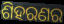
ଶିହରଣର